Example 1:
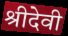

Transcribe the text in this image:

श्रीदेवी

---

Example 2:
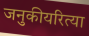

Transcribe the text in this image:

जनुकीयरित्या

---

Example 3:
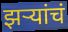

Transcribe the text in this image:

झर्‍यांचं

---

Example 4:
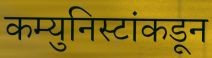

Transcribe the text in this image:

कम्युनिस्टांकडून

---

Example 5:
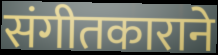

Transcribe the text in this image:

संगीतकाराने